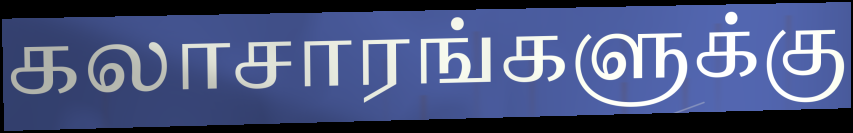
கலாசாரங்களுக்கு